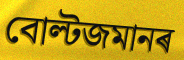
বোল্টজমানৰ